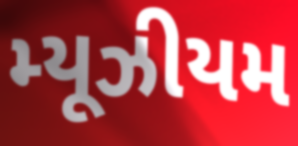
મ્યૂઝીયમ